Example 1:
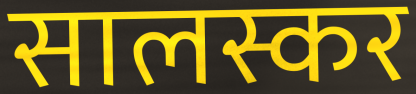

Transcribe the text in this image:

सालस्कर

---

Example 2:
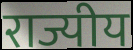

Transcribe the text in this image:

राज्यीय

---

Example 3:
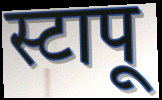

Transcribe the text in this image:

स्टापू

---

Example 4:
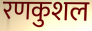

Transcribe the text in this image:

रणकुशल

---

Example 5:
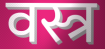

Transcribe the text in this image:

वस्त्र